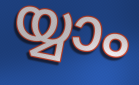
യ്യാം